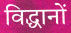
विद्धानों